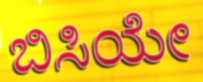
ಬಿಸಿಯೇ